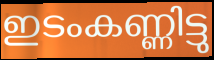
ഇടംകണ്ണിട്ടു